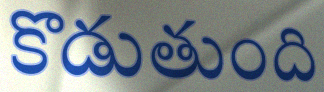
కొడుతుంది